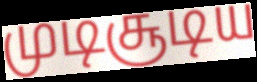
முடிசூடிய